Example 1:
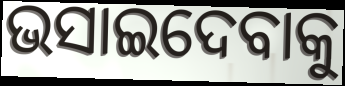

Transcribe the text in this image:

ଭସାଇଦେବାକୁ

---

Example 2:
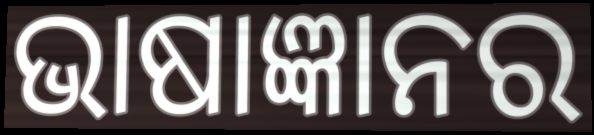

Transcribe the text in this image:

ଭାଷାଜ୍ଞାନର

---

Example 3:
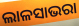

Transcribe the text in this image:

ଲାଳସାଭରା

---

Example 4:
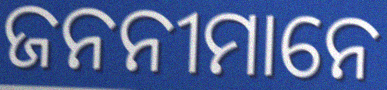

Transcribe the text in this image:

ଜନନୀମାନେ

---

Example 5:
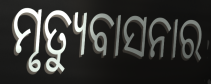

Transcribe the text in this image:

ମୃତ୍ୟୁବାସନାର